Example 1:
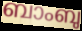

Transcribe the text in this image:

ബാംബു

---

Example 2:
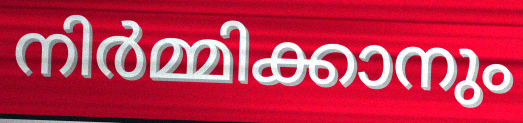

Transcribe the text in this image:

നിർമ്മിക്കാനും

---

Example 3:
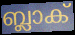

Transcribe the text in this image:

ബ്ലാക്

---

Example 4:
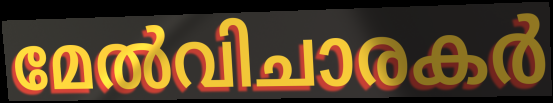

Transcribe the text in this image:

മേൽവിചാരകർ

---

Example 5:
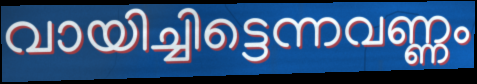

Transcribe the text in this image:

വായിച്ചിട്ടെന്നവണ്ണം